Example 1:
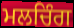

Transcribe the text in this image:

ਮਲਚਿੰਗ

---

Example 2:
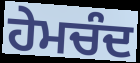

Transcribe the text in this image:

ਹੇਮਚੰਦ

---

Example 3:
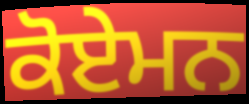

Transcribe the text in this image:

ਕੋਏਮਨ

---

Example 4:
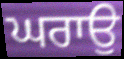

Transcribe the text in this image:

ਘਰਾਉ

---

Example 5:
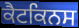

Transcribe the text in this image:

ਕੈਟਕਿਨਸ